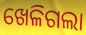
ଖେଳିଗଲା